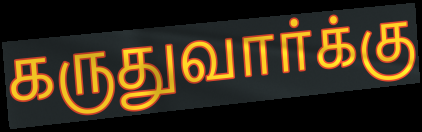
கருதுவார்க்கு